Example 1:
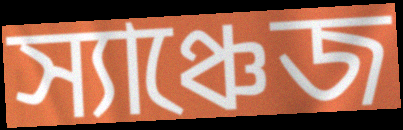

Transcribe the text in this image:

স্যাঞ্চেজ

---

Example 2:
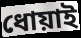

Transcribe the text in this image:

ধোয়াই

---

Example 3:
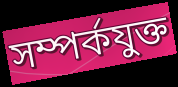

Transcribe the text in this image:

সম্পর্কযুক্ত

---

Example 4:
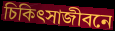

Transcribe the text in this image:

চিকিৎসাজীবনে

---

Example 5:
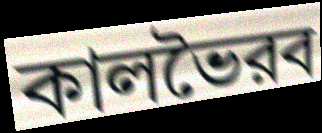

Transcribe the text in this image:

কালভৈরব